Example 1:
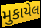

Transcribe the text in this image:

મુકાયેલ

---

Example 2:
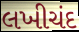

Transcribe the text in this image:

લખીચંદ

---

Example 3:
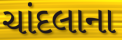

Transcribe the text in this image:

ચાંદલાના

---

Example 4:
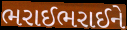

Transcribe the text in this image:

ભરાઈભરાઈને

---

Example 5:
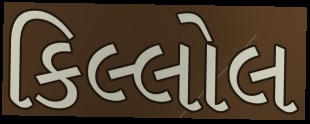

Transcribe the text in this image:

કિલ્લોલ